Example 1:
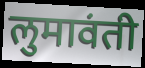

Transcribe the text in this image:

लुमावंती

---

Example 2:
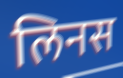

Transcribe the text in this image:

लिनस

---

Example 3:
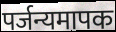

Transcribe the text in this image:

पर्जन्यमापक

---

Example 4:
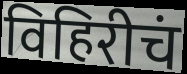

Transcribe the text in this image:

विहिरीचं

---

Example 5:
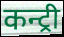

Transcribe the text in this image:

कन्ट्री